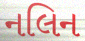
નલિન